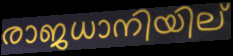
രാജധാനിയില്